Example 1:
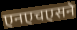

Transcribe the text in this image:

एनएचएसने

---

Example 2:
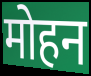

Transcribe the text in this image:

मोहन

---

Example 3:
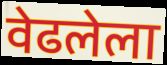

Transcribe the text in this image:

वेढलेला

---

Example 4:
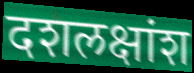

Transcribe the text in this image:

दशलक्षांश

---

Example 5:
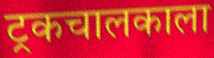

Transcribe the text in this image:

ट्रकचालकाला